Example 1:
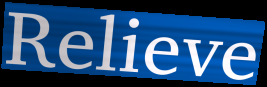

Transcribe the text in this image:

Relieve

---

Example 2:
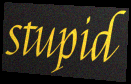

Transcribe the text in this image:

stupid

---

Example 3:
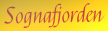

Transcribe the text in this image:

Sognafjorden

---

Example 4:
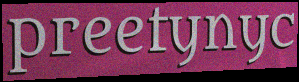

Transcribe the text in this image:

preetynyc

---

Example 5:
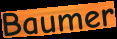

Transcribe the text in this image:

Baumer